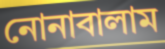
নোনাবালাম